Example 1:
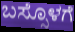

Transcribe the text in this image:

ಬಸ್ಸೊಳಗೆ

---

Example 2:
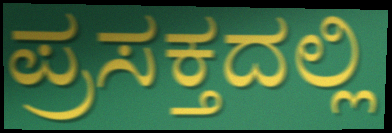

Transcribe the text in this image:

ಪ್ರಸಕ್ತದಲ್ಲಿ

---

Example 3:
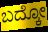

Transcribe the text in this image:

ಬದ್ಕೋ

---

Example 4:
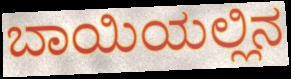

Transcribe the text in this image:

ಬಾಯಿಯಲ್ಲಿನ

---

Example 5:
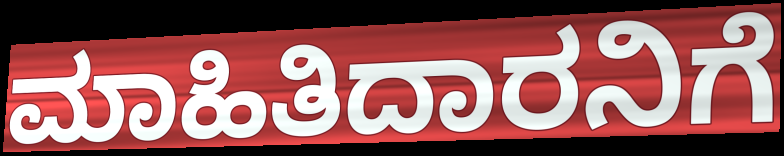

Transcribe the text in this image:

ಮಾಹಿತಿದಾರನಿಗೆ